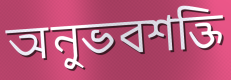
অনুভবশক্তি